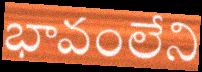
భావంలేని